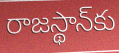
రాజస్థాన్‌కు